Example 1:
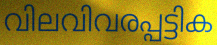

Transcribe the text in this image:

വിലവിവരപ്പട്ടിക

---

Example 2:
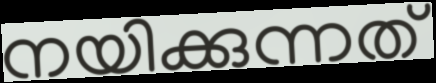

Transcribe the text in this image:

നയിക്കുന്നത്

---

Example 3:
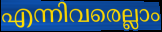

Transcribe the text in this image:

എന്നിവരെല്ലാം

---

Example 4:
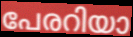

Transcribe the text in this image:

പേരറിയാ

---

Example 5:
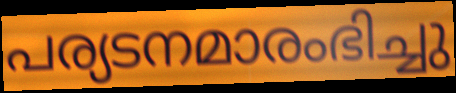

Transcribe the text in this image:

പര്യടനമാരംഭിച്ചു